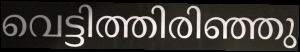
വെട്ടിത്തിരിഞ്ഞു